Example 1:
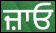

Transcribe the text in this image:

ਜ਼ਾਓ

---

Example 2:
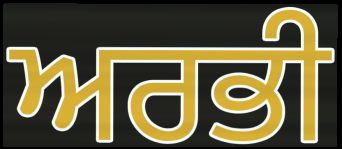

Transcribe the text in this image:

ਅਰਭੀ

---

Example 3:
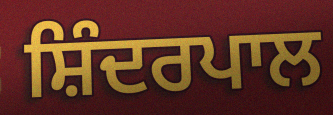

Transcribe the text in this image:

ਸ਼ਿੰਦਰਪਾਲ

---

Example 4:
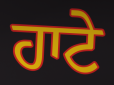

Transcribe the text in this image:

ਹਾਟੇ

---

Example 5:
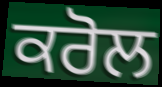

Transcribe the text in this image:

ਕਰੋਲ